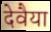
देवैया